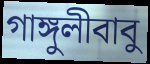
গাঙ্গুলীবাবু